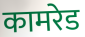
कामरेड